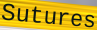
Sutures